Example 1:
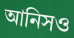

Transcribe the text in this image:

আনিসও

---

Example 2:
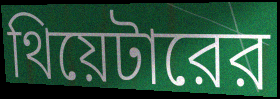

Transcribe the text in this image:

থিয়েটারের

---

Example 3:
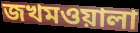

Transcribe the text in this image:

জখমওয়ালা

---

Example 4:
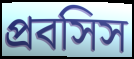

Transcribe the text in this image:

প্রবসিস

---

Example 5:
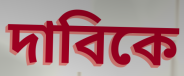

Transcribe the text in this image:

দাবিকে